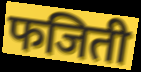
फजिती